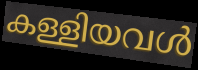
കള്ളിയവൾ